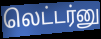
லெட்டர்னு